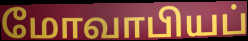
மோவாபியப்